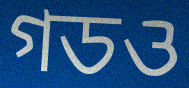
গডও